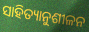
ସାହିତ୍ୟାନୁଶୀଳନ